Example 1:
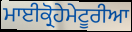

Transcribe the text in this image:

ਮਾਈਕ੍ਰੋਹੇਮੇਟੂਰੀਆ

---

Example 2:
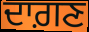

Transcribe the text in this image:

ਦਾਗ਼ਣ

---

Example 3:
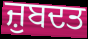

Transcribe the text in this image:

ਜ਼ੁਬਦਤ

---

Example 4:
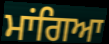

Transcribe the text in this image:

ਮਾਂਗਿਆ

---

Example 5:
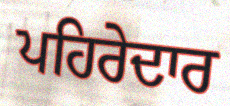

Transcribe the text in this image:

ਪਹਿਰੇਦਾਰ